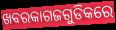
ଖବରକାଗଜଗୁଡିକରେ